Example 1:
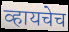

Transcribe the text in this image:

व्हायचेच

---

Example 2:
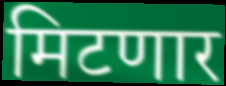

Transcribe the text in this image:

मिटणार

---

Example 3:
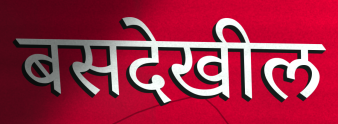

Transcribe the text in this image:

बसदेखील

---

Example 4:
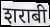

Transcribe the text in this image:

शराबी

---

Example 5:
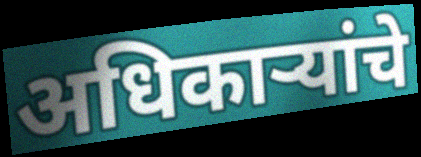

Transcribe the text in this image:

अधिकाऱ्यांचे